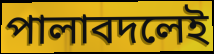
পালাবদলেই